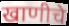
खाणीचे